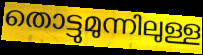
തൊട്ടുമുന്നിലുള്ള